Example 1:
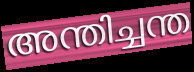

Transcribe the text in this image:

അന്തിച്ചന്ത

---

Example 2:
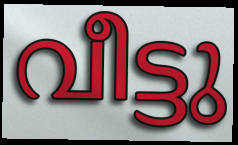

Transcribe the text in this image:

വീട്ടു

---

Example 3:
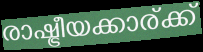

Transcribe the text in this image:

രാഷ്ട്രീയക്കാര്ക്ക്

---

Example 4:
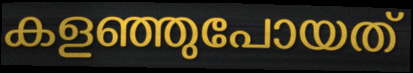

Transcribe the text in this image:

കളഞ്ഞുപോയത്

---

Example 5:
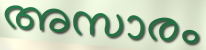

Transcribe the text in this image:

അസാരം